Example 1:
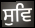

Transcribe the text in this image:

ਸੁਵਿ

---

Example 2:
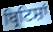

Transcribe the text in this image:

ਬ੍ਰਿਟਿਸ਼ਾਂ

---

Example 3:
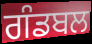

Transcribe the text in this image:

ਗੰਡਬਲ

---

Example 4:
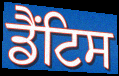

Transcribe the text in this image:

ਡੈਂਟਿਸ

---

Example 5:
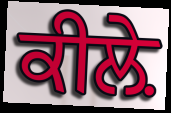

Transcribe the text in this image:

ਕੀਲ਼ੇ